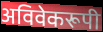
अविवेकरूपी